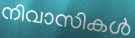
നിവാസികൾ